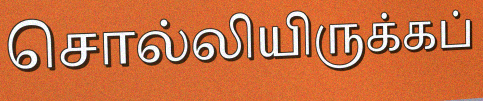
சொல்லியிருக்கப்